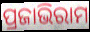
ପ୍ରଜାଭିରାମ